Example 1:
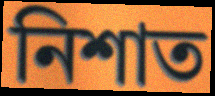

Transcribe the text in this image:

নিশাত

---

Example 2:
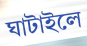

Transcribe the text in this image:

ঘাটাইলে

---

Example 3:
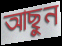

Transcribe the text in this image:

আছুন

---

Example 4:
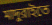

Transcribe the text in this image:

মাদুরাইতে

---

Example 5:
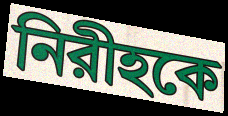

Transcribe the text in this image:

নিরীহকে